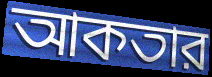
আকতার